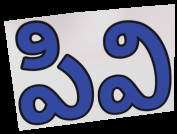
పివి